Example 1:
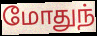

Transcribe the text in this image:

மோதுந்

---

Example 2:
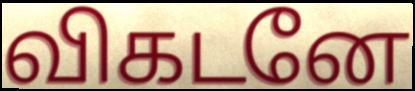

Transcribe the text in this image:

விகடனே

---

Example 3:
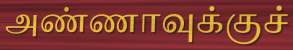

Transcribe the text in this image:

அண்ணாவுக்குச்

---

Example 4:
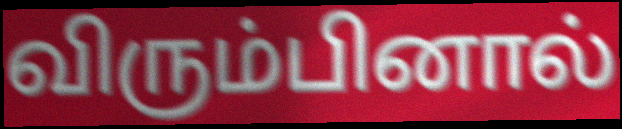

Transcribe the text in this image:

விரும்பினால்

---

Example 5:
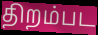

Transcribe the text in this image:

திறம்பட